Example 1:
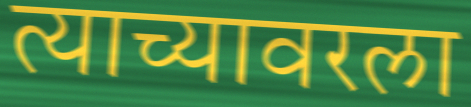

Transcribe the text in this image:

त्याच्यावरला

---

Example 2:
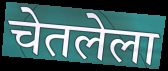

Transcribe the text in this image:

चेतलेला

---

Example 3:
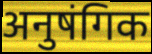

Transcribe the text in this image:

अनुषंगिक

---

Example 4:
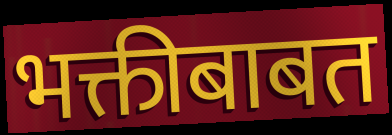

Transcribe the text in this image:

भक्तीबाबत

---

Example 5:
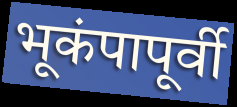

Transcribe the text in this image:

भूकंपापूर्वी